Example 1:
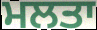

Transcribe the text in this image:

ਮਲਤਾ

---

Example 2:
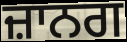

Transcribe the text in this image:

ਜ਼ਾਨਗ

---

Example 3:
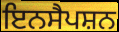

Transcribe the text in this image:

ਇਨਸੈਪਸ਼ਨ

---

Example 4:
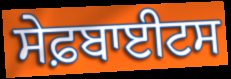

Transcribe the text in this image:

ਸੇਫ਼ਬਾਈਟਸ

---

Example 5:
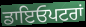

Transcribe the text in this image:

ਡਾਇਓਪਟਰਾਂ